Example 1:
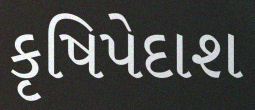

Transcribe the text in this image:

કૃષિપેદાશ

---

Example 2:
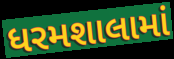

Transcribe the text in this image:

ધરમશાલામાં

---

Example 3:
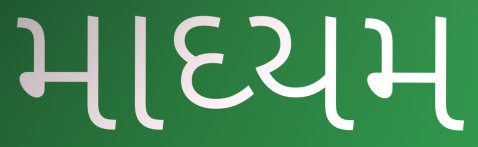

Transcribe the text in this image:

માઘ્યમ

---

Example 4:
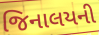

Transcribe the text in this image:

જિનાલયની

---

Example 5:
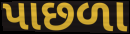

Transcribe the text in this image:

પાછળા